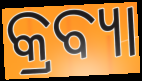
କ୍ରବ୍ୟା